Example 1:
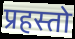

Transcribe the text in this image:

प्रहस्तो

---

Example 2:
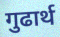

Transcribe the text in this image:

गुढार्थ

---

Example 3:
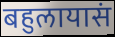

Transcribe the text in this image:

बहुलायासं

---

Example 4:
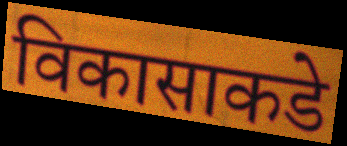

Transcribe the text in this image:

विकासाकडे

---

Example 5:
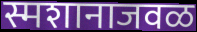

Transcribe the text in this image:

स्मशानाजवळ